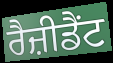
ਰੈਜ਼ੀਡੈਂਟ